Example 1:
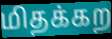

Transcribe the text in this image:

மிதக்கற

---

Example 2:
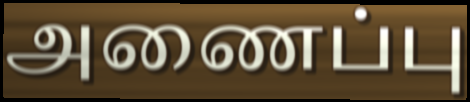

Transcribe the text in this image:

அணைப்பு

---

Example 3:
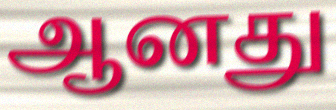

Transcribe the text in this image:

ஆனது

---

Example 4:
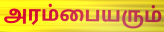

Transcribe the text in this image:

அரம்பையரும்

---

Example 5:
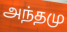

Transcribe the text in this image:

அந்தமு